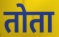
तोता